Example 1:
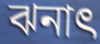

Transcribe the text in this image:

ঝনাৎ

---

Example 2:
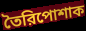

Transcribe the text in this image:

তৈরিপোশাক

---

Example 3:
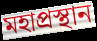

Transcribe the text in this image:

মহাপ্রস্থান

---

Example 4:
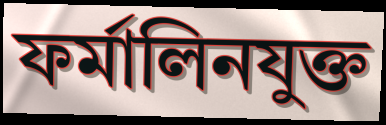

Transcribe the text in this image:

ফর্মালিনযুক্ত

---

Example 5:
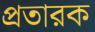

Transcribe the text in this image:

প্রতারক